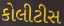
કોલીટીસ